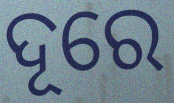
ଦୂରେ